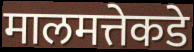
मालमत्तेकडे